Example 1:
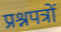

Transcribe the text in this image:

प्रश्नपत्रों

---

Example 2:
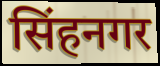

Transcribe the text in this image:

सिंहनगर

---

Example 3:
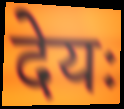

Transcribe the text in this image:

देयः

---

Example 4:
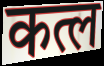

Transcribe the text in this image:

कत्‍ल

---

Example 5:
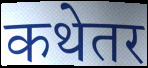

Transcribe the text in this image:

कथेतर